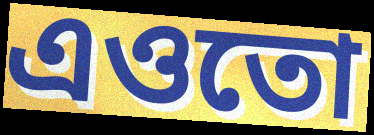
এওতো